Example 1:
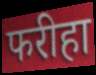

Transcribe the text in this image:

फरीहा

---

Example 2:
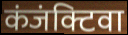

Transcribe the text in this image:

कंजंक्टिवा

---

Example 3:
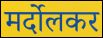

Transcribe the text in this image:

मर्दोलकर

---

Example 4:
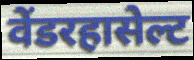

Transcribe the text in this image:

वेंडरहासेल्ट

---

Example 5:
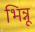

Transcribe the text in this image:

भिन्नू